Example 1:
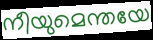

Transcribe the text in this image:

നീയുമെന്തയേ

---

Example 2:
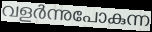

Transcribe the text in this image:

വളർന്നുപോകുന്ന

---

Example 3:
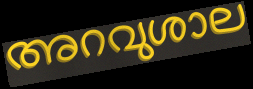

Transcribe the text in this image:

അറവുശാല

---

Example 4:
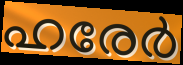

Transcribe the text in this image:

ഹരേർ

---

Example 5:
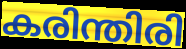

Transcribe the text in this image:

കരിന്തിരി